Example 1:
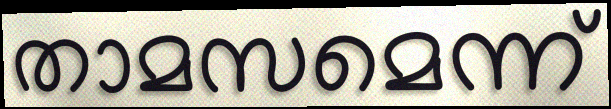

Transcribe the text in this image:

താമസമെന്ന്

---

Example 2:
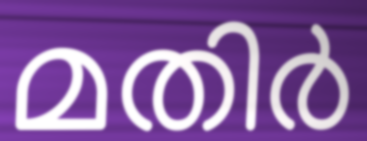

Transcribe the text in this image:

മതിർ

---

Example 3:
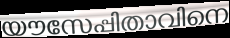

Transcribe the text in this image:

യൗസേപ്പിതാവിനെ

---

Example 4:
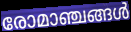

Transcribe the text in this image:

രോമാഞ്ചങ്ങൾ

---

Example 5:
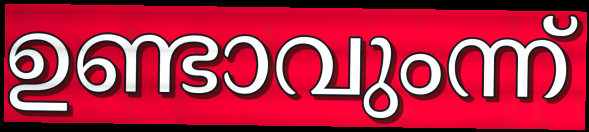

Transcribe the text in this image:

ഉണ്ടാവുംന്ന്